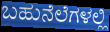
ಬಹುನೆಲೆಗಳಲ್ಲಿ